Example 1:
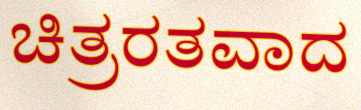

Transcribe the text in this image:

ಚಿತ್ರರತವಾದ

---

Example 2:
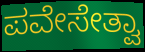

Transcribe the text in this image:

ಪವೇಸೇತ್ವಾ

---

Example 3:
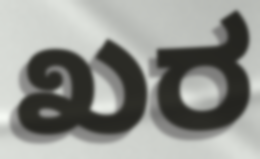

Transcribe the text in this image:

ಖರ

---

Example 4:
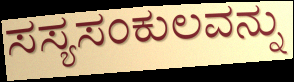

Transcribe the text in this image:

ಸಸ್ಯಸಂಕುಲವನ್ನು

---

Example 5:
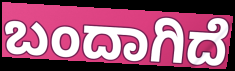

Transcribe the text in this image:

ಬಂದಾಗಿದೆ